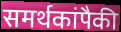
समर्थकांपैकी